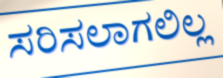
ಸರಿಸಲಾಗಲಿಲ್ಲ